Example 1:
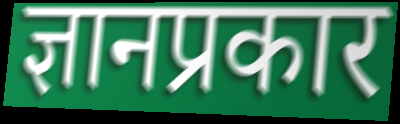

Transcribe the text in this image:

ज्ञानप्रकार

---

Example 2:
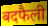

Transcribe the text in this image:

बदफैली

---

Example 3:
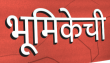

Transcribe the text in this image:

भूमिकेची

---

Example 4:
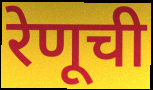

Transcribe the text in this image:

रेणूची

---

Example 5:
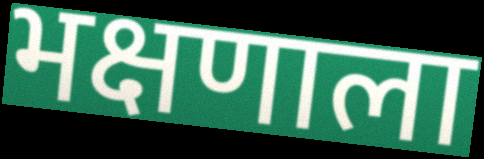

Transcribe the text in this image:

भक्षणाला